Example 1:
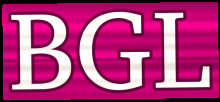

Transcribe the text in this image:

BGL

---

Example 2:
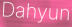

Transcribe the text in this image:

Dahyun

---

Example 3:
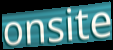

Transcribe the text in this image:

onsite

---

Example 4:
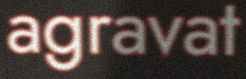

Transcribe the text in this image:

agravat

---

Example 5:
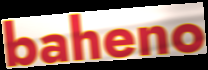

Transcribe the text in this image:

baheno